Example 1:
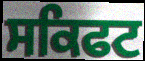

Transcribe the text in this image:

ਸਕਿਫਟ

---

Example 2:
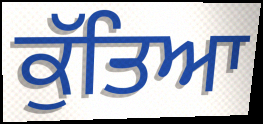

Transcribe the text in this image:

ਕੁੱਤਿਆ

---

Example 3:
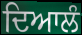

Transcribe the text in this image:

ਦਿਆਲੰ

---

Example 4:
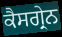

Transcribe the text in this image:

ਕੈਸਗ੍ਰੇਨ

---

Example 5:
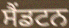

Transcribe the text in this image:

ਸੈਂਡਟਨ